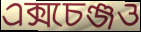
এক্সচেঞ্জও